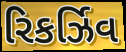
રિકર્ઝિવ